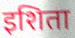
इशिता